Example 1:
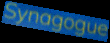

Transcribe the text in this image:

Synagogue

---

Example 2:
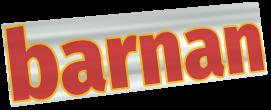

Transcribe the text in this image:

barnan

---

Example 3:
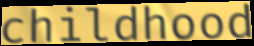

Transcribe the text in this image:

childhood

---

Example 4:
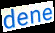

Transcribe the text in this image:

dene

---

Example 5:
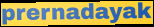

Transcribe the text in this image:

prernadayak